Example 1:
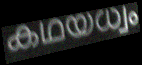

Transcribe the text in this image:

കഥയധ്വം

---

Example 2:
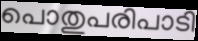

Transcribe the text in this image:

പൊതുപരിപാടി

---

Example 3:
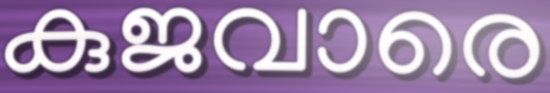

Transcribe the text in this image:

കുജവാരെ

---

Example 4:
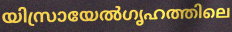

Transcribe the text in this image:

യിസ്രായേൽഗൃഹത്തിലെ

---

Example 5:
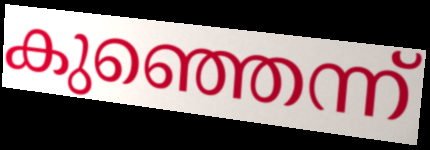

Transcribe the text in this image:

കുഞ്ഞെന്ന്